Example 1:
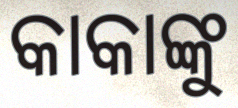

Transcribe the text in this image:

କାକାଙ୍କୁ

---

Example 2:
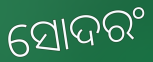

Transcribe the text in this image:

ସୋଦରଂ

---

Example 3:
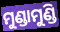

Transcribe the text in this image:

ମୁଣ୍ଡାମୁଣ୍ଡି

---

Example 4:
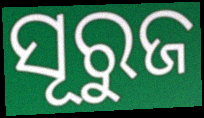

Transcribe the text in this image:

ସୂରୁଜ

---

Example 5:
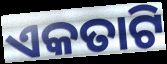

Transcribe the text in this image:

ଏକତାଟି